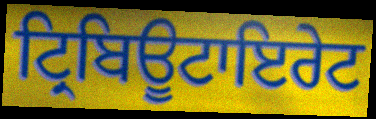
ਟ੍ਰਿਬਿਊਟਾਇਰੇਟ